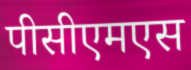
पीसीएमएस